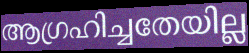
ആഗ്രഹിച്ചതേയില്ല